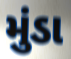
મુંડા